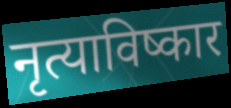
नृत्याविष्कार